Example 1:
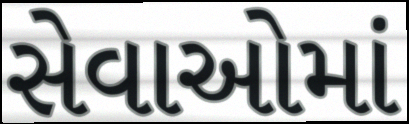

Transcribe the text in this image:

સેવાઓમાં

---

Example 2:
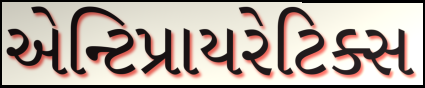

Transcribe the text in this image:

એન્ટિપ્રાયરેટિક્સ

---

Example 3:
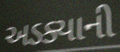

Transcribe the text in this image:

અડક્યાની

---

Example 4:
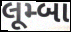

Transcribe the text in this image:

લૂમ્બા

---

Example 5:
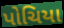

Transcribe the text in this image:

પોચિયા